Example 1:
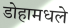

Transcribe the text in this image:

डोहामधले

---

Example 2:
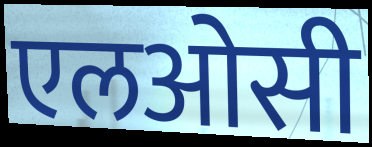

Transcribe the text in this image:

एलओसी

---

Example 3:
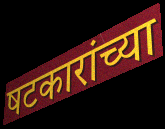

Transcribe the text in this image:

षटकारांच्या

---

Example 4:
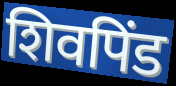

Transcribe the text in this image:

शिवपिंड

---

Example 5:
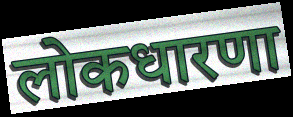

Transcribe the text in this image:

लोकधारणा